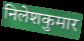
निलेशकुमार